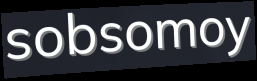
sobsomoy